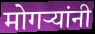
मोगऱ्यांनी